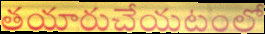
తయారుచేయటంలో